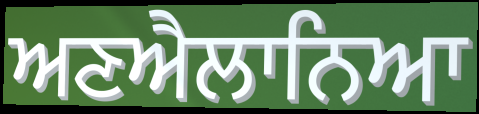
ਅਣਐਲਾਨਿਆ